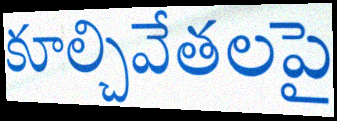
కూల్చివేతలపై